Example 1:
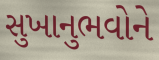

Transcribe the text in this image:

સુખાનુભવોને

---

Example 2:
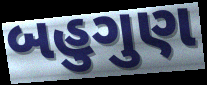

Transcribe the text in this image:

બહુગુણ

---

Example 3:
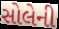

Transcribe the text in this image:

સોલેની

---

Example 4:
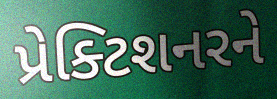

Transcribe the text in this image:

પ્રેક્ટિશનરને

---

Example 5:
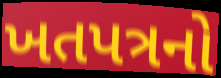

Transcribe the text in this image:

ખતપત્રનો